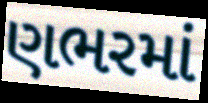
ણભરમાં